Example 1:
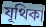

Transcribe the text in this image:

যূথিকা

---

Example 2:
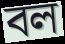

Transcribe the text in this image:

বল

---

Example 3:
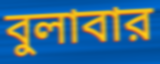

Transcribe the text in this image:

বুলাবার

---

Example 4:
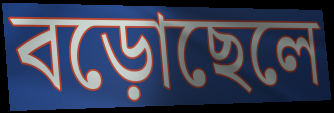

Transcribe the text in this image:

বড়োছেলে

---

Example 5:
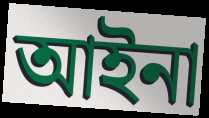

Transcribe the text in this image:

আইনা